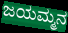
ಜಯಮ್ಮನ